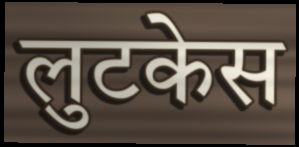
लुटकेस